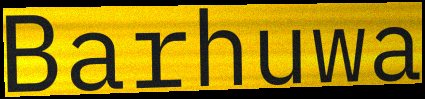
Barhuwa